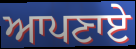
ਆਪਣਾਏ